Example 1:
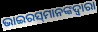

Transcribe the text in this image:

ଭାଇରସ୍‌ମାନଙ୍କଦ୍ୱାରା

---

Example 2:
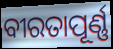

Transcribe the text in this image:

ବୀରତାପୂର୍ଣ୍ଣ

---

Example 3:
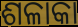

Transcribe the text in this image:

ଶଳାକା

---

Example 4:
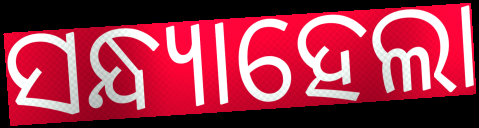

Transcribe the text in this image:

ସନ୍ଧ୍ୟାହେଲା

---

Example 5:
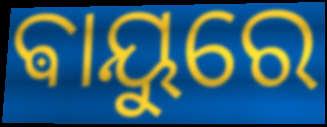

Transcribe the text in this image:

ଵାୟୁରେ